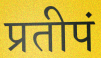
प्रतीपं